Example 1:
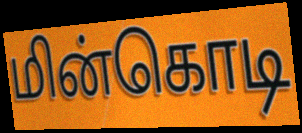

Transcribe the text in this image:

மின்கொடி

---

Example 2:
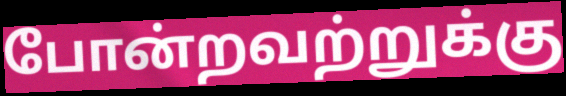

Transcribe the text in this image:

போன்றவற்றுக்கு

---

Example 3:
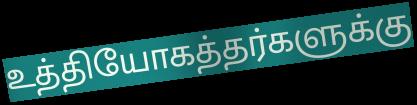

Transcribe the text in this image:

உத்தியோகத்தர்களுக்கு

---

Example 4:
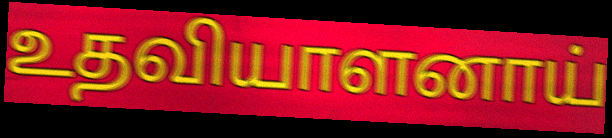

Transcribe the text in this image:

உதவியாளனாய்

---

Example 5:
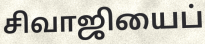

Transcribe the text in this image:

சிவாஜியைப்